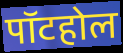
पॉटहोल